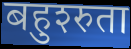
बहुश्रुता